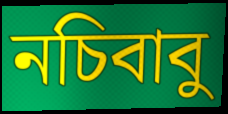
নচিবাবু